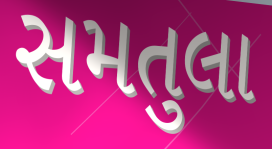
સમતુલા